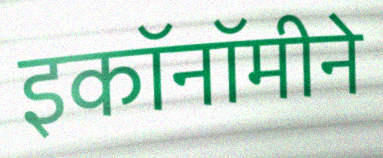
इकॉनॉमीने